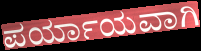
ಪರ್ಯಾಯವಾಗಿ